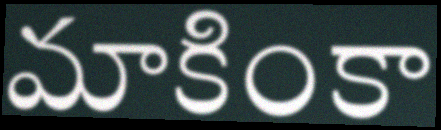
మాకింకా